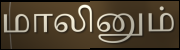
மாலினும்